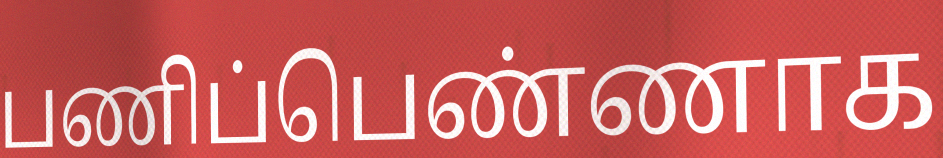
பணிப்பெண்ணாக